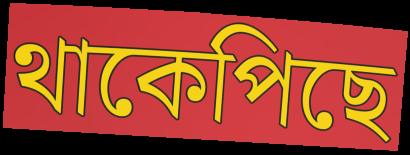
থাকেপিছে